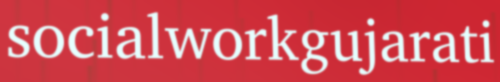
socialworkgujarati